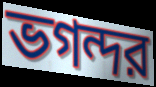
ভগন্দর